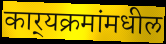
कार्यक्रमांमधील